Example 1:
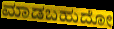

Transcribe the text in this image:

ಮಾಡಬಹುದೋ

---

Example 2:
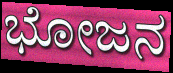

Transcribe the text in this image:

ಭೋಜನ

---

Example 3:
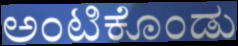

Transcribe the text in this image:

ಅಂಟಿಕೊಂಡು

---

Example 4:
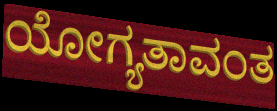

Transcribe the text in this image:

ಯೋಗ್ಯತಾವಂತ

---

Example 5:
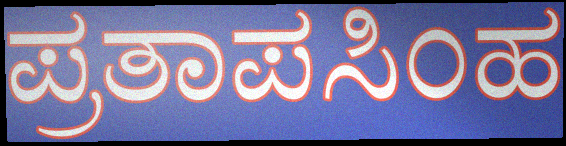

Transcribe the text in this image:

ಪ್ರತಾಪಸಿಂಹ